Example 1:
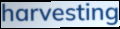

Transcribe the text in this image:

harvesting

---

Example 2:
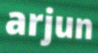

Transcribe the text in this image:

arjun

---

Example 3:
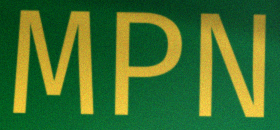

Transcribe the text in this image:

MPN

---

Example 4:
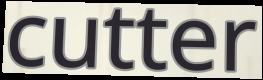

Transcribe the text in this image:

cutter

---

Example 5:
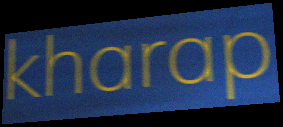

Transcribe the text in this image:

kharap